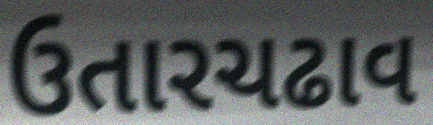
ઉતારચઢાવ